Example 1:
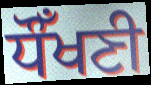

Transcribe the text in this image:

ਧੌਁਖਣੀ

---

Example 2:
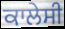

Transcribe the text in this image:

ਕਾਲੇਸੀ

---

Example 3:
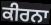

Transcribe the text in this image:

ਕੀਰਨਾ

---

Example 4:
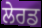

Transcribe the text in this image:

ਲੇਰਡ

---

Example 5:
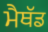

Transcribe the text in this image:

ਮੈਥੱਡ